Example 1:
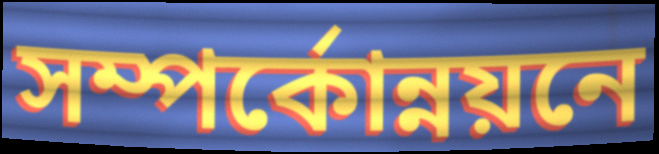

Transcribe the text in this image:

সম্পর্কোন্নয়নে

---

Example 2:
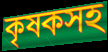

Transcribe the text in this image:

কৃষকসহ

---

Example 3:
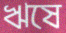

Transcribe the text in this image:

ঋষে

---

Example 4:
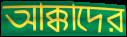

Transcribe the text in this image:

আক্কাদের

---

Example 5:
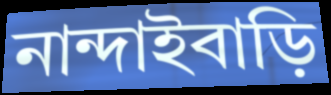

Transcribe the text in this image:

নান্দাইবাড়ি